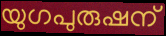
യുഗപുരുഷന്